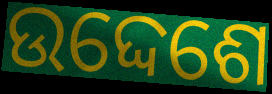
ଉଦ୍ଦେଶେ